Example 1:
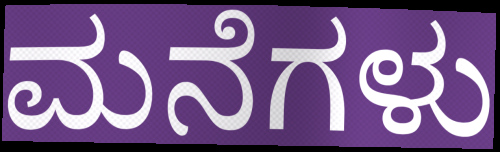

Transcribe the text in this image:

ಮನೆಗಳು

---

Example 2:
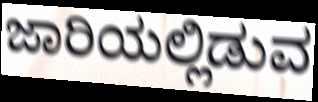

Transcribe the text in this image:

ಜಾರಿಯಲ್ಲಿಡುವ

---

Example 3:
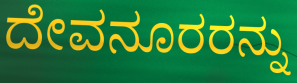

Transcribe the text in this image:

ದೇವನೂರರನ್ನು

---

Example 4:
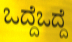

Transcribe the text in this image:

ಒದ್ದೆಒದ್ದೆ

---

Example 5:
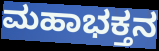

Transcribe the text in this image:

ಮಹಾಭಕ್ತನ